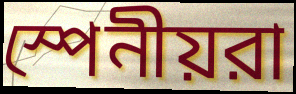
স্পেনীয়রা